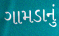
ગામડાનું